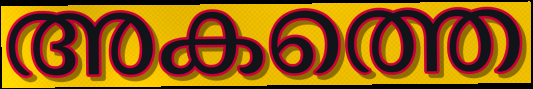
അകത്തെ